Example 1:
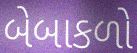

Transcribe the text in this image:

બેબાકળો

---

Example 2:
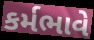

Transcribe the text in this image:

કર્મભાવે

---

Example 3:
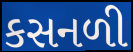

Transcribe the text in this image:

કસનળી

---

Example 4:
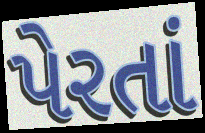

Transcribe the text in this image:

પેરતાં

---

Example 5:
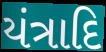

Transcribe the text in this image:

યંત્રાદિ